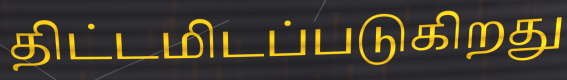
திட்டமிடப்படுகிறது